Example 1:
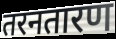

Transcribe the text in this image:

तरनतारण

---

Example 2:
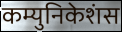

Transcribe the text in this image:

कम्‍युनिकेशंस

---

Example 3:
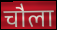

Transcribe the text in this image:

चौला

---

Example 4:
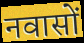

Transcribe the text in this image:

नवासों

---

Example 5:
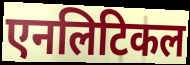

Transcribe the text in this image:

एनलिटिकल